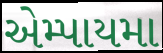
એમ્પાયમા